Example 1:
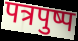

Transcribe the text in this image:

पत्रपुष्प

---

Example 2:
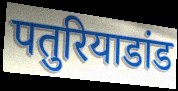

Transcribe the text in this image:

पतुरियाडांड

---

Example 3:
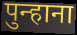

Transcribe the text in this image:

पुन्हाना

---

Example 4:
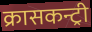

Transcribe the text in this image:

क्रासकन्ट्री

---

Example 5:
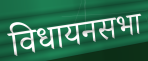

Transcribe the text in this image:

विधायनसभा